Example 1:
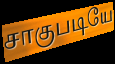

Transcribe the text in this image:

சாகுபடியே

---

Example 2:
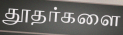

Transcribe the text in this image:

தூதர்களை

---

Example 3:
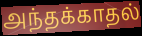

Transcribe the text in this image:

அந்தக்காதல்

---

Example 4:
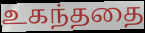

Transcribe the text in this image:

உகந்ததை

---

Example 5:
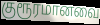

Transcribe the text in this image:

குரூரமானவை